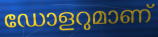
ഡോളറുമാണ്